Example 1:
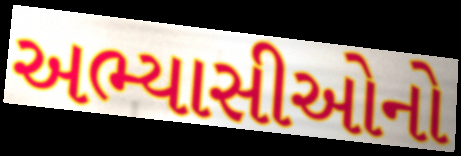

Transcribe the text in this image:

અભ્યાસીઓનો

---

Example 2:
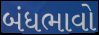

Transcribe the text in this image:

બંધભાવો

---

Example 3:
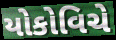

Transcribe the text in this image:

યોકોવિચે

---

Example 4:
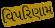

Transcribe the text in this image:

વિપરિણામ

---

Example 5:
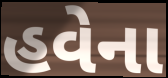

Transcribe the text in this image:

હવેના